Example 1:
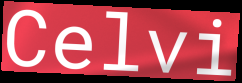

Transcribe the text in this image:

Celvi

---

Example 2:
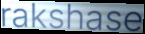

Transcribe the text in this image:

rakshase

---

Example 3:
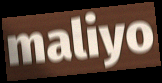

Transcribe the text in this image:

maliyo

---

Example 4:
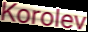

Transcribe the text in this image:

Korolev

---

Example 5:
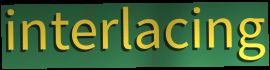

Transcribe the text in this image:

interlacing